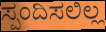
ಸ್ಪಂದಿಸಲಿಲ್ಲ